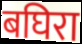
बघिरा